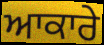
ਆਕਾਰੇ